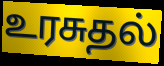
உரசுதல்